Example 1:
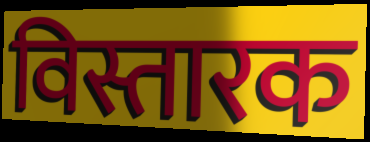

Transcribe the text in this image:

विस्तारक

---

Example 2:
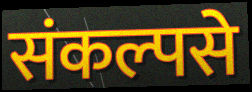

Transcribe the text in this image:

संकल्पसे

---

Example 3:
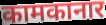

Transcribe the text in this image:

कामकानार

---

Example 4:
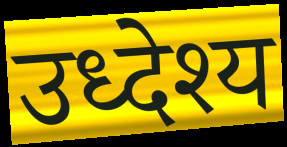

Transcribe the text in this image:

उध्देश्य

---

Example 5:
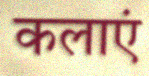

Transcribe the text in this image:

कलाएं